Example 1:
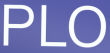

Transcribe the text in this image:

PLO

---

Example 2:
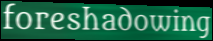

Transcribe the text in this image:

foreshadowing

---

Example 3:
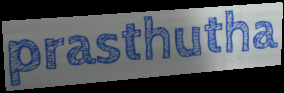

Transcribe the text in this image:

prasthutha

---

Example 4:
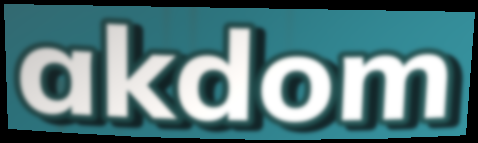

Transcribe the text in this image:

akdom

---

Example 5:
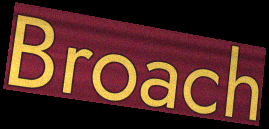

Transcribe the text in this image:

Broach